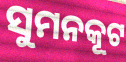
ସୁମନକୂଟ